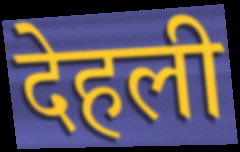
देहली